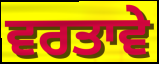
ਵਰਤਾਵੇ